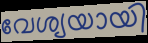
വേശ്യയായി